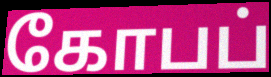
கோபப்